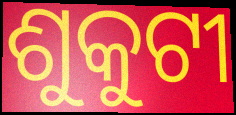
ଶୁକୁଟୀ